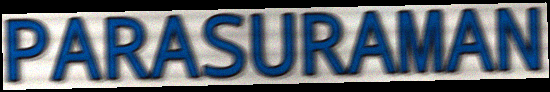
PARASURAMAN